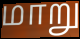
மாறு